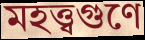
মহত্ত্বগুণে